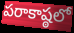
పరాకాష్ఠలో